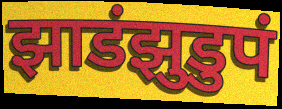
झाडंझुडुपं